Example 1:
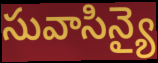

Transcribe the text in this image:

సువాసిన్యై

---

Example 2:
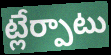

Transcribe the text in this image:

ట్లేర్పాటు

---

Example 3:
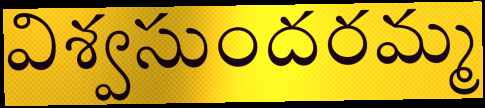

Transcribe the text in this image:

విశ్వసుందరమ్మ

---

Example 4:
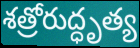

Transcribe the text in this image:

శత్రోరుద్ధృత్య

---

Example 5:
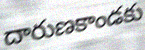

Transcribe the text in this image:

దారుణకాండకు